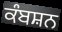
ਕੰਬਸ਼ਨ